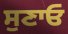
ਸੁਣਾਓ